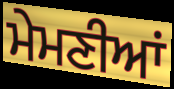
ਮੇਮਣੀਆਂ